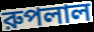
রুপলাল